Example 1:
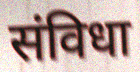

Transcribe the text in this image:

संविधा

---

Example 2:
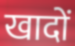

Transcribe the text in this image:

खादों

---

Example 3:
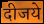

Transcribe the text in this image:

दीजये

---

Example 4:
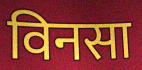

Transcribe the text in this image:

विनसा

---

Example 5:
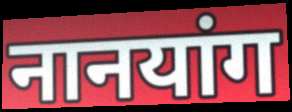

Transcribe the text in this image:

नानयांग